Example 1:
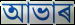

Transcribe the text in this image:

আভাৰ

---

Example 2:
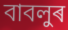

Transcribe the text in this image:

বাবলুৰ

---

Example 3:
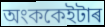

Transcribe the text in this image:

অংককেইটাৰ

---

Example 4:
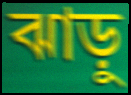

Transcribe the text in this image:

ঝাড়ু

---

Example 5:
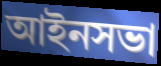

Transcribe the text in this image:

আইনসভা